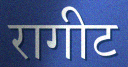
रागीट